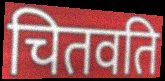
चितवति